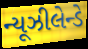
ન્યૂઝીલેન્ડે